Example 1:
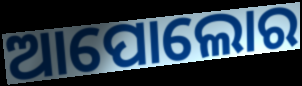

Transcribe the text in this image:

ଆପୋଲୋର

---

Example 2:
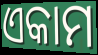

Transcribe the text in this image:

ଏକାମ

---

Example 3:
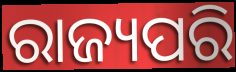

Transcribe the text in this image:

ରାଜ୍ୟପରି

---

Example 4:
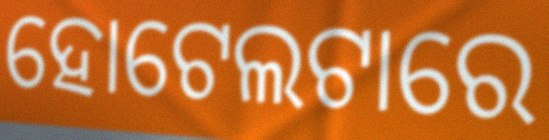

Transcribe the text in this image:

ହୋଟେଲଟାରେ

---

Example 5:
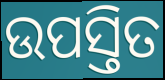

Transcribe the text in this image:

ଉପସ୍ତିତ